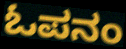
ಓಪನಂ